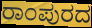
ರಾಂಪುರದ